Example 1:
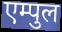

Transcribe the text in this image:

एम्पुल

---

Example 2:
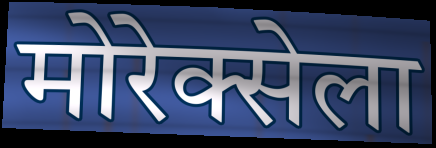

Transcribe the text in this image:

मोरेक्सेला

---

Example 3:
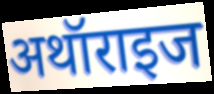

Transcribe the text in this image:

अथॉराइज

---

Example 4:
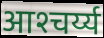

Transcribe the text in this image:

आश्चर्य्य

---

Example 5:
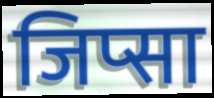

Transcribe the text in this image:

जिप्सा